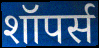
शॉपर्स